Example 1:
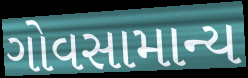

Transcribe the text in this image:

ગોવસામાન્ય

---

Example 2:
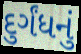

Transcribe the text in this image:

દુર્ગંધનું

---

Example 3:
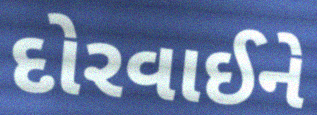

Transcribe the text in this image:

દોરવાઈને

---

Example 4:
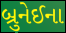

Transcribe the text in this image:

બ્રુનેઈના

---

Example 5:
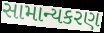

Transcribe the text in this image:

સામાન્યકરણ